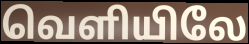
வெளியிலே